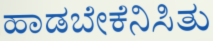
ಹಾಡಬೇಕೆನಿಸಿತು